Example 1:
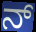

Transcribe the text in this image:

ನ್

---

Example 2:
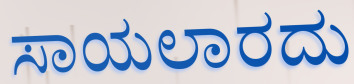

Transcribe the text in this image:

ಸಾಯಲಾರದು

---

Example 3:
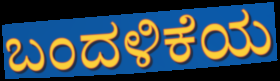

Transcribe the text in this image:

ಬಂದಳಿಕೆಯ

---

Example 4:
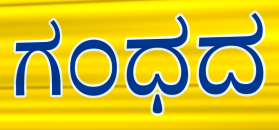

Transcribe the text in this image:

ಗಂಧದ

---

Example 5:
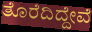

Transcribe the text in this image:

ತೊರೆದಿದ್ದೇವೆ